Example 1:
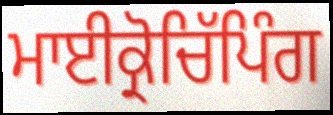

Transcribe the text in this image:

ਮਾਈਕ੍ਰੋਚਿੱਪਿੰਗ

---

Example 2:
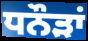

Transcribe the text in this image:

ਧਨੌੜਾਂ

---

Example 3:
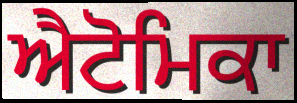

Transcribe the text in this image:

ਐਟੋਮਿਕਾ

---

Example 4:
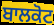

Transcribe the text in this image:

ਬਾਲਕੋਟ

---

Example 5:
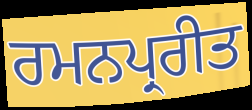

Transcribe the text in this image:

ਰਮਨਪ੍ਰਰੀਤ